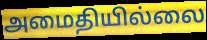
அமைதியில்லை